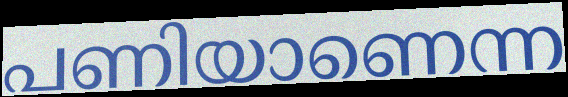
പണിയാണെന്ന